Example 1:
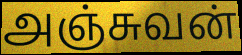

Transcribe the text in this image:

அஞ்சுவன்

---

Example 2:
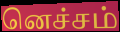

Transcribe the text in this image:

னெச்சம்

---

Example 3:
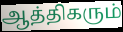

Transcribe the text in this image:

ஆத்திகரும்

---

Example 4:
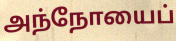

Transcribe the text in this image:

அந்நோயைப்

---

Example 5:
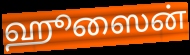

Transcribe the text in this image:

ஹூஸைன்